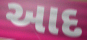
આદ